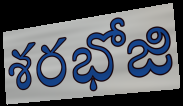
శరభోజి